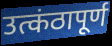
उत्कंठापूर्ण